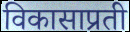
विकासाप्रती